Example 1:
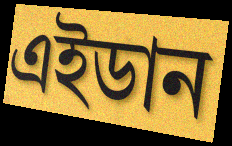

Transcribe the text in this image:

এইডান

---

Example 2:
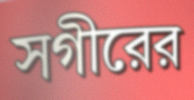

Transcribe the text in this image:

সগীরের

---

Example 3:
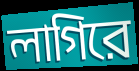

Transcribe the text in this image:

লাগিরে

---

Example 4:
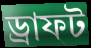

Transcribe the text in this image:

ড্রাফট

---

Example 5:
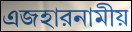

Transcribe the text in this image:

এজহারনামীয়